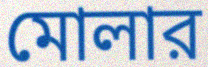
মোলার